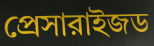
প্রেসারাইজড